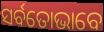
ସର୍ବତୋଭାବେ